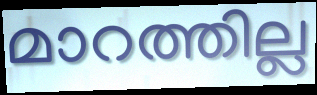
മാറത്തില്ല